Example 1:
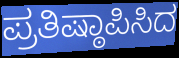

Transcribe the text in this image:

ಪ್ರತಿಷ್ಠಾಪಿಸಿದ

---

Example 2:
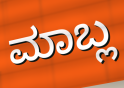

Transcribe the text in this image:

ಮಾಬ್ಲ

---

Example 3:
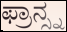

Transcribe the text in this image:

ಫ್ರಾನ್ಸ್ನ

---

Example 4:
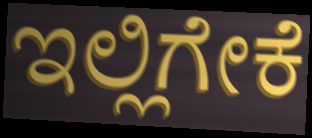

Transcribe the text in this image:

ಇಲ್ಲಿಗೇಕೆ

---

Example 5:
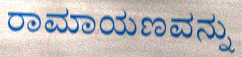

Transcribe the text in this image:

ರಾಮಾಯಣವನ್ನು